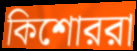
কিশোররা